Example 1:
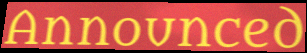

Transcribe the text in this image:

Announced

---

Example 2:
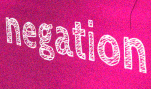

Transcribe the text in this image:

negation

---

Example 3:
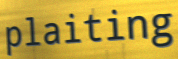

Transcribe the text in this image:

plaiting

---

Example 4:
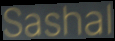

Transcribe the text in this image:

Sashal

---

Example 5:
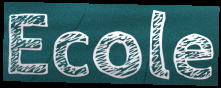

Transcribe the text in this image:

Ecole